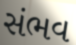
સંભવ